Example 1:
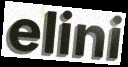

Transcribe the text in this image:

elini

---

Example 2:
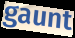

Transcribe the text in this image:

gaunt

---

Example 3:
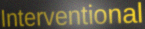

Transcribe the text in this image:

Interventional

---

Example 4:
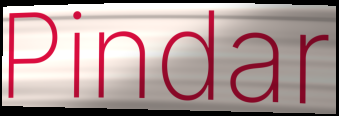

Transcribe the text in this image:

Pindar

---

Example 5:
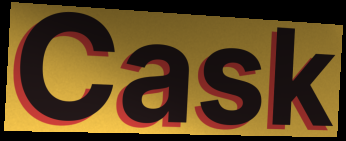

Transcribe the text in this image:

Cask